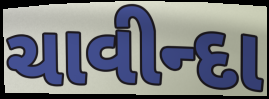
ચાવીન્દા